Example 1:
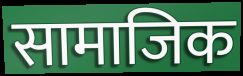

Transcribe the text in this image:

सामाजिक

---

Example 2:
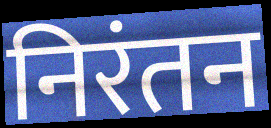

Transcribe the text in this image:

निरंतन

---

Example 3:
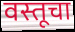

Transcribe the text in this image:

वस्तूचा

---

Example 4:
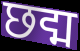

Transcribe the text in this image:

छद्म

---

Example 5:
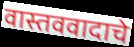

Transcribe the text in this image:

वास्तववादाचे